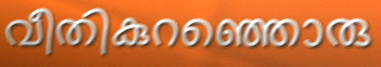
വീതികുറഞ്ഞൊരു